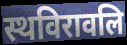
स्थविरावलि